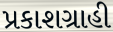
પ્રકાશગ્રાહી